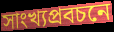
সাংখ্যপ্রবচনে